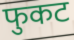
फुकट